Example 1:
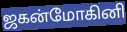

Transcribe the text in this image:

ஜகன்மோகினி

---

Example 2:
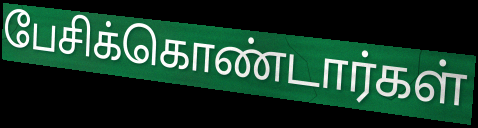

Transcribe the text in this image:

பேசிக்கொண்டார்கள்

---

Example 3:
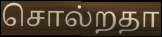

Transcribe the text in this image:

சொல்றதா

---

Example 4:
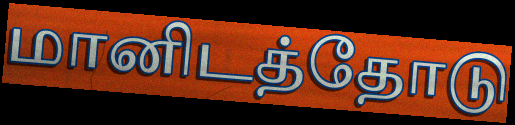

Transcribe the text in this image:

மானிடத்தோடு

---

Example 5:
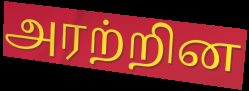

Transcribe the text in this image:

அரற்றின